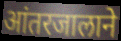
आंतरजालाने